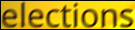
elections